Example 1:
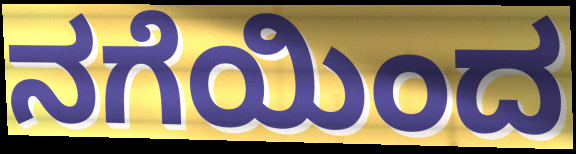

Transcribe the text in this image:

ನಗೆಯಿಂದ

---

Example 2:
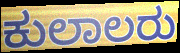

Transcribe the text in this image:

ಕುಲಾಲರು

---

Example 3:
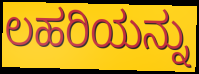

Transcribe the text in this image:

ಲಹರಿಯನ್ನು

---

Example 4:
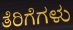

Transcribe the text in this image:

ತೆರಿಗೆಗಳು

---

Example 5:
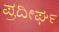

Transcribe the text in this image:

ಪ್ರದೀರ್ಘ